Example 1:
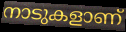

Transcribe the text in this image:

നാടുകളാണ്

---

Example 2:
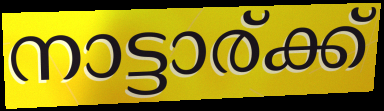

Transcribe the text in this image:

നാട്ടാര്ക്ക്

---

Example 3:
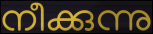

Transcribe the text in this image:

നീക്കുന്നു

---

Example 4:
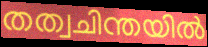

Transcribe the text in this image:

തത്വചിന്തയിൽ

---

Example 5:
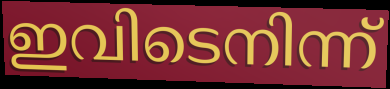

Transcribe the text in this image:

ഇവിടെനിന്ന്